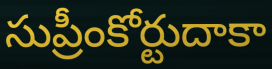
సుప్రీంకోర్టుదాకా